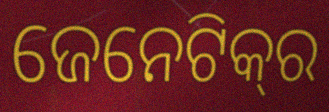
ଜେନେଟିକ୍‌ର